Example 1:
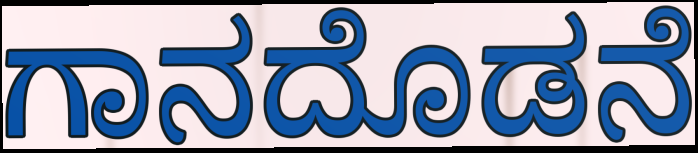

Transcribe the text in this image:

ಗಾನದೊಡನೆ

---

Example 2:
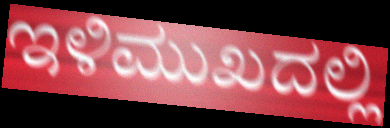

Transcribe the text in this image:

ಇಳಿಮುಖದಲ್ಲಿ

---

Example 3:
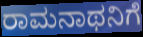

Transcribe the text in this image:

ರಾಮನಾಥನಿಗೆ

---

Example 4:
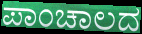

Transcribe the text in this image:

ಪಾಂಚಾಲದ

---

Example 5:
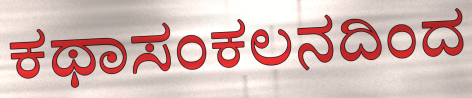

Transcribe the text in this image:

ಕಥಾಸಂಕಲನದಿಂದ